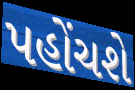
પહોંચશે